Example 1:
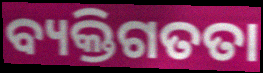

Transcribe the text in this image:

ବ୍ୟକ୍ତିଗତତା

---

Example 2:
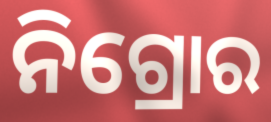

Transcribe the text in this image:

ନିଗ୍ରୋର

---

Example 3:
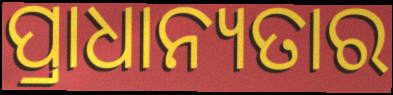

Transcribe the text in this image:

ପ୍ରାଧାନ୍ୟତାର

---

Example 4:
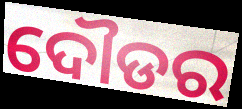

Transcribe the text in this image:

ଦୌଡର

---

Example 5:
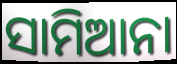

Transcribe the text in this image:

ସାମିଆନା